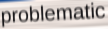
problematic